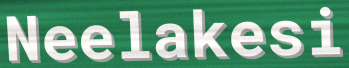
Neelakesi